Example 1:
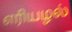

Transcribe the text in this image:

எரியழல்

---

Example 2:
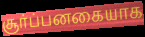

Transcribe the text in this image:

சூர்ப்பனகையாக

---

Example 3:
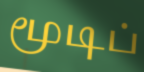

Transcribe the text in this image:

மூடிப்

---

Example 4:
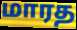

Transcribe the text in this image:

மாரத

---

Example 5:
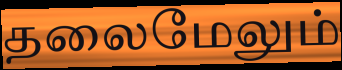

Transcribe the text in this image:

தலைமேலும்